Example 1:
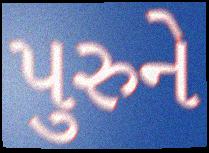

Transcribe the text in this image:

પુરુને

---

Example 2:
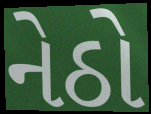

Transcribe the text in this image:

નેઠો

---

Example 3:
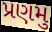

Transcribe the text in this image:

પ્રણમુ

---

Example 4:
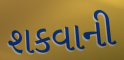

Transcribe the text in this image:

શકવાની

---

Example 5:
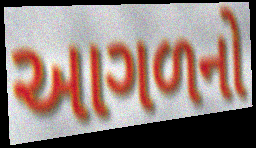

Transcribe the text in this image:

આગળનો